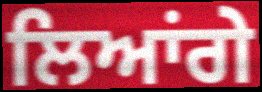
ਲਿਆਂਗੇ